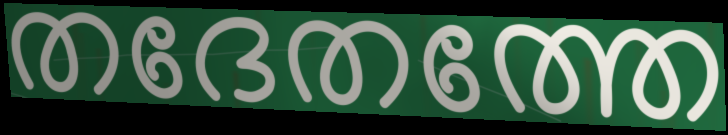
തദേതത്തേ